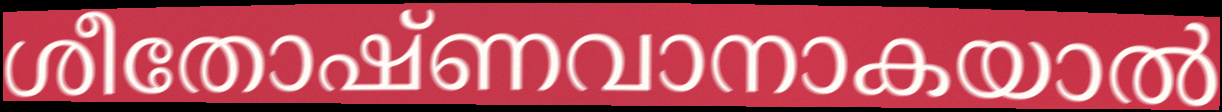
ശീതോഷ്ണവാനാകയാൽ